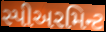
સ્પીઅરમિન્ટ